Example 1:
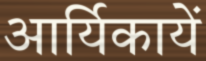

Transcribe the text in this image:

आर्यिकायें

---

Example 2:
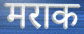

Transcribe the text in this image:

मराक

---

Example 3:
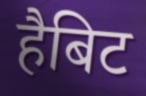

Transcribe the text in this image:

हैबिट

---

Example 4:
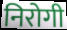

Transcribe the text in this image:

निरोगी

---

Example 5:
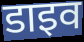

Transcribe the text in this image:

डाइव